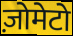
ज़ोमेटो